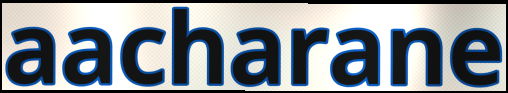
aacharane